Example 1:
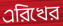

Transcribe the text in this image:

এরিখের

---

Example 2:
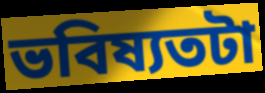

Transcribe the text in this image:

ভবিষ্যতটা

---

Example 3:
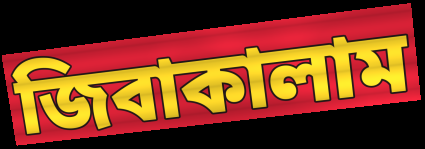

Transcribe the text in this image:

জিবাকালাম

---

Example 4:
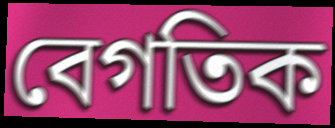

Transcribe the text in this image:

বেগতিক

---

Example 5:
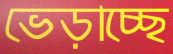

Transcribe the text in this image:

ভেড়াচ্ছে